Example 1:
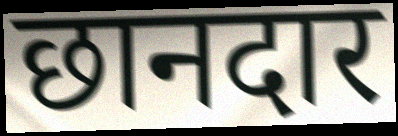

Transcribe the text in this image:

छानदार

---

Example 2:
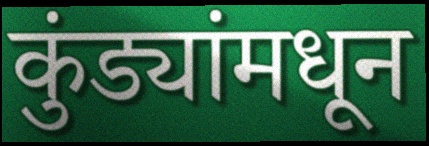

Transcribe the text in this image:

कुंड्यांमधून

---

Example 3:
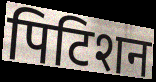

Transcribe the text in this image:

पिटिशन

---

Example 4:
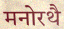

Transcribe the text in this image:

मनोरथै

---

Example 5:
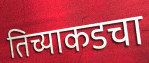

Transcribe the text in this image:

तिच्याकडचा